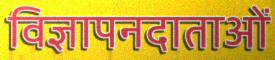
विज्ञापनदाताओं